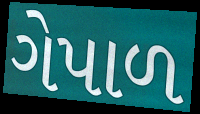
ગેપાળ